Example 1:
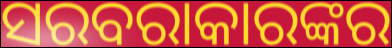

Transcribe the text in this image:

ସରବରାକାରଙ୍କର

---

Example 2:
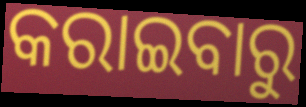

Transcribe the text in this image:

କରାଇବାରୁ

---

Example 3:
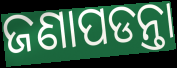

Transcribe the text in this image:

ଜଣାପଡନ୍ତା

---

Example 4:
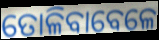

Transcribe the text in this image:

ତୋଳିବାବେଳେ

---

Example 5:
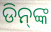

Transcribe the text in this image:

ଡିନ୍‍ଙ୍କ